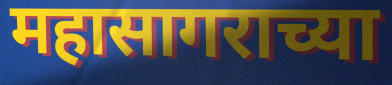
महासागराच्या